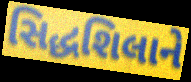
સિદ્ધશિલાને